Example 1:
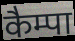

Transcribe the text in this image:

कैम्पा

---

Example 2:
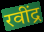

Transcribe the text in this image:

रवींद्र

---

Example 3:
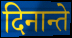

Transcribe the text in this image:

दिनान्ते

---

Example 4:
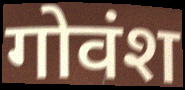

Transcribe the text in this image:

गोवंश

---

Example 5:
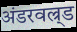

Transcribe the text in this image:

अंडरवल्र्ड